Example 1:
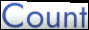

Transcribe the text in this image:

Count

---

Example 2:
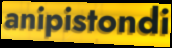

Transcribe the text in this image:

anipistondi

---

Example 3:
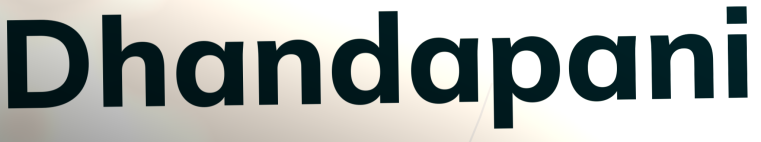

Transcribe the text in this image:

Dhandapani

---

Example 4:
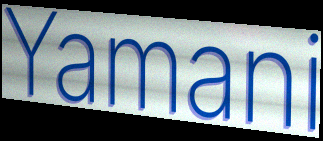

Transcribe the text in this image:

Yamani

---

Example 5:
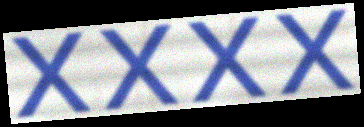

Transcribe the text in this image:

xxxx